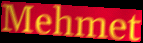
Mehmet